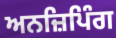
ਅਨਜ਼ਿਪਿੰਗ